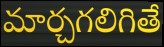
మార్చగలిగితే